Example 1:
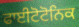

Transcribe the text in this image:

ਫਾਈਟੋਟੋਨਿਕ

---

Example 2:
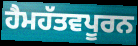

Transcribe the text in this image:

ਹੈਮਹੱਤਵਪੂਰਨ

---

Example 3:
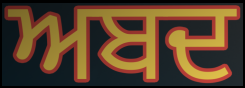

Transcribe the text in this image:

ਅਬਦ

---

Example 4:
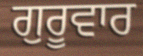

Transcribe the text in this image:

ਗੁਰੂਵਾਰ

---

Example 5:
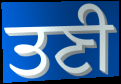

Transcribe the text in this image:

ਤਣੀ